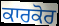
ਕਾਰਕੋਰ